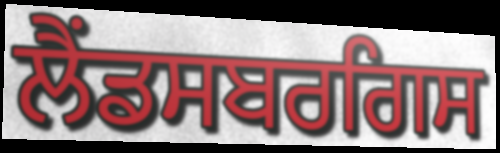
ਲੈਂਡਸਬਰਗਿਸ